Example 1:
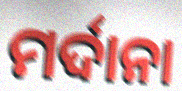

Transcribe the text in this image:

ମର୍ଦାନା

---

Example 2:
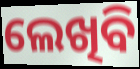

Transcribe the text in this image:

ଲେଖିବି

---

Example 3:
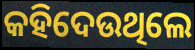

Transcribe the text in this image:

କହିଦେଉଥିଲେ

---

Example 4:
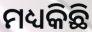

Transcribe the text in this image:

ମଧ୍ୟକିଛି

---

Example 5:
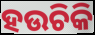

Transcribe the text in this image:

ହଉଚିକି